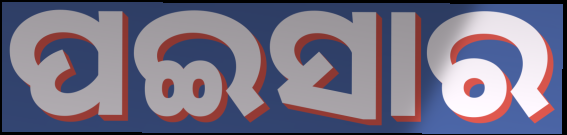
ପଇସାର